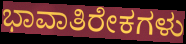
ಭಾವಾತಿರೇಕಗಳು